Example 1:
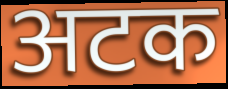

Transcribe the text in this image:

अटक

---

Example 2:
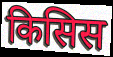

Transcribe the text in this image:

किसिस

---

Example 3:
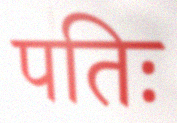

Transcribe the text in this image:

पतिः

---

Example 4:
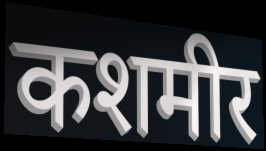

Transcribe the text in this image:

कशमीर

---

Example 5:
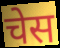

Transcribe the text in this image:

चेस